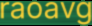
raoavg